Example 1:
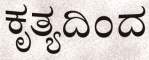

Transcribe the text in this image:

ಕೃತ್ಯದಿಂದ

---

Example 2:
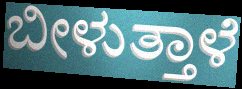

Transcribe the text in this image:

ಬೀಳುತ್ತಾಳೆ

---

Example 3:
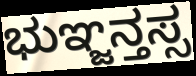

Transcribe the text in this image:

ಭುಞ್ಜನ್ತಸ್ಸ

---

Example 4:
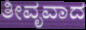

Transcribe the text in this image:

ತೀವೃವಾದ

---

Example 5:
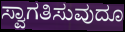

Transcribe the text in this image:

ಸ್ವಾಗತಿಸುವುದೂ